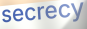
secrecy